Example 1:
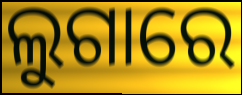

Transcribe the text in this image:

ଲୁଗାରେ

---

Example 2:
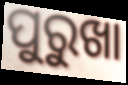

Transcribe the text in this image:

ପୁରୁଖା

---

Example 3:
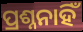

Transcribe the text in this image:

ପ୍ରଶ୍ନନାହିଁ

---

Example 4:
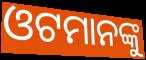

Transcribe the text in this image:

ଓଟମାନଙ୍କୁ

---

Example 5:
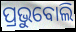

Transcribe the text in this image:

ପ୍ରଭୁବୋଲି